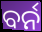
ବର୍ନ